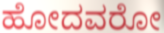
ಹೋದವರೋ